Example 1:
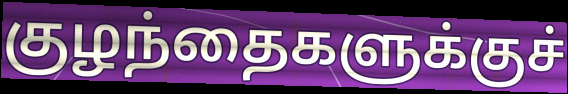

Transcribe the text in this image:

குழந்தைகளுக்குச்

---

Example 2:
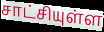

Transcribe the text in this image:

சாட்சியுள்ள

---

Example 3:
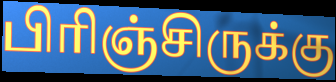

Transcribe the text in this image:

பிரிஞ்சிருக்கு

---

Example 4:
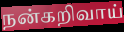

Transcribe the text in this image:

நன்கறிவாய்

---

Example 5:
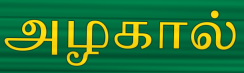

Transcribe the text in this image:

அழகால்